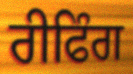
ਰੀਫਿੰਗ